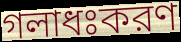
গলাধঃকরণ